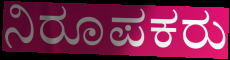
ನಿರೂಪಕರು